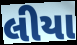
લીયા